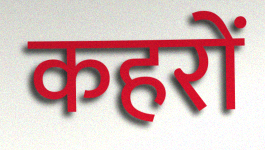
कहरों